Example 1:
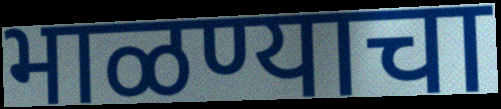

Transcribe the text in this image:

भाळण्याचा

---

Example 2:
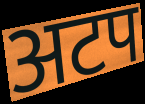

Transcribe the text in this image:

अटप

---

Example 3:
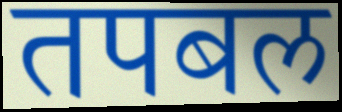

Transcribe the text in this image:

तपबल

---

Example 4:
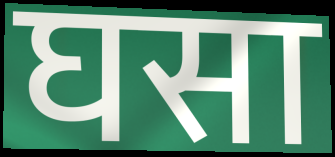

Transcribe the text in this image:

घसा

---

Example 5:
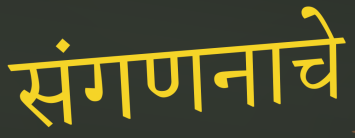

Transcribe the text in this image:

संगणनाचे